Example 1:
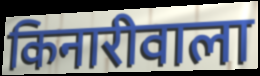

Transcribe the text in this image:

किनारीवाला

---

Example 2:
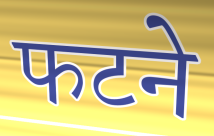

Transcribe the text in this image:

फटने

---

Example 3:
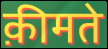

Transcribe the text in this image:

क़ीमते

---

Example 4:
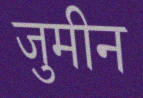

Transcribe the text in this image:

जुमीन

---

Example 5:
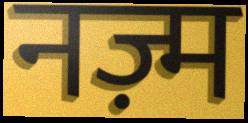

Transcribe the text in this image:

नज़्म